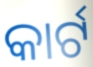
କାର୍ଟ